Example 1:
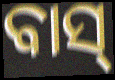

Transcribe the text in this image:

ବାସ୍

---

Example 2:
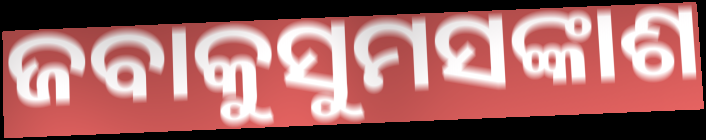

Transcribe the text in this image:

ଜବାକୁସୁମସଙ୍କାଶ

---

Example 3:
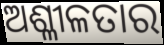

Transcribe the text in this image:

ଅଶ୍ଳୀଳତାର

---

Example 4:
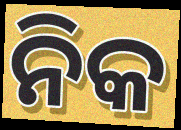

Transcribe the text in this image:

ନିକ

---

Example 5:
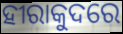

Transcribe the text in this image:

ହୀରାକୁଦରେ